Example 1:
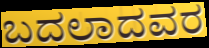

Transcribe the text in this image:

ಬದಲಾದವರ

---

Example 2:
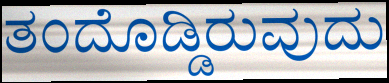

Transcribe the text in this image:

ತಂದೊಡ್ಡಿರುವುದು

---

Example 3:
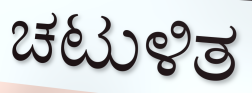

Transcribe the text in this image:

ಚಟುಳಿತ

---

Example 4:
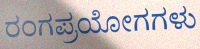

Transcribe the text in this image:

ರಂಗಪ್ರಯೋಗಗಳು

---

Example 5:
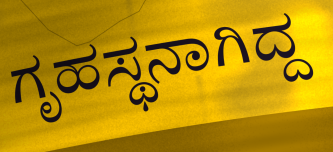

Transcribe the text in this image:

ಗೃಹಸ್ಥನಾಗಿದ್ದ